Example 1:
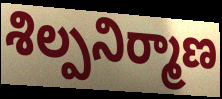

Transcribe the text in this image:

శిల్పనిర్మాణ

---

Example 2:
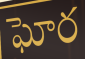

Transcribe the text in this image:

ఘోర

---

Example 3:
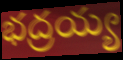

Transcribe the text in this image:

భద్రయ్య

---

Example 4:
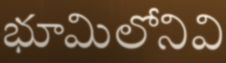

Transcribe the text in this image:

భూమిలోనివి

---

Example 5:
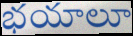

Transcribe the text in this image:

భయాలూ